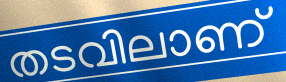
തടവിലാണ്